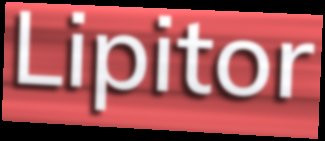
Lipitor